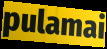
pulamai